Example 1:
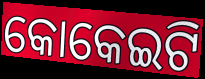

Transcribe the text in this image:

କୋକେଇଟି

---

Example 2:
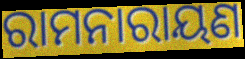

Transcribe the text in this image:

ରାମନାରାୟଣ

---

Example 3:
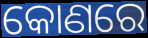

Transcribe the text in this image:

କୋଣରେ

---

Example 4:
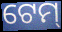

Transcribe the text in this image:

ଟେମ୍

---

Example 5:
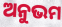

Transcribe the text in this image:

ଅନୁଭମ